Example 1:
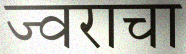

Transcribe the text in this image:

ज्वराचा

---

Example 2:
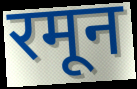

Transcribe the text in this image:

रमून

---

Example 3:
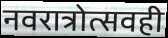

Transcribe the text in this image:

नवरात्रोत्सवही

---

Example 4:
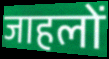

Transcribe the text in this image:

जाहलों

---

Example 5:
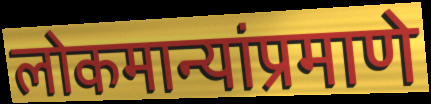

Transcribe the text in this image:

लोकमान्यांप्रमाणे